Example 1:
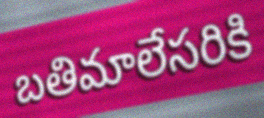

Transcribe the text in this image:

బతిమాలేసరికి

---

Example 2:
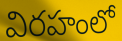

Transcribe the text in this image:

విరహంలో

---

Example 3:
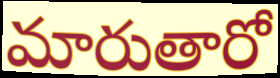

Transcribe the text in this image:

మారుతారో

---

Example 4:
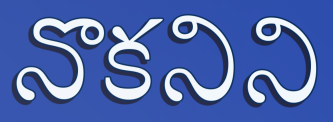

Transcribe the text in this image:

నొకనిని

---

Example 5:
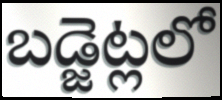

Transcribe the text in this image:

బడ్జెట్లలో